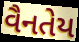
વૈનતેય